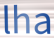
lha